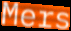
Mers